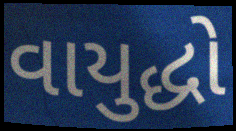
વાયુદ્ધો